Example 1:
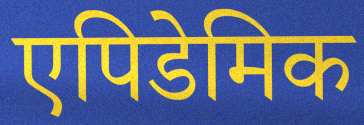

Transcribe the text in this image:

एपिडेमिक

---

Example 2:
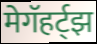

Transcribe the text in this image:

मेगॅहर्ट्झ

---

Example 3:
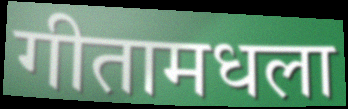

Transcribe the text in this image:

गीतामधला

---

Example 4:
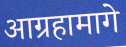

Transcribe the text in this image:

आग्रहामागे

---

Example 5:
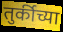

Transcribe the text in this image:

तुर्कीच्या